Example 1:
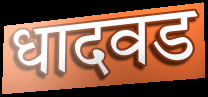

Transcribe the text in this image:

धादवड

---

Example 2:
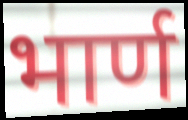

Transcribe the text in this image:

भार्ण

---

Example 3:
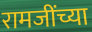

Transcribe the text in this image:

रामजींच्या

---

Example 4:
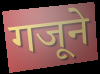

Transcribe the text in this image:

गजूने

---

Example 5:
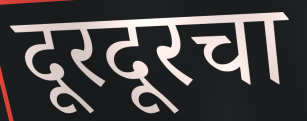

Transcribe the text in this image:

दूरदूरचा